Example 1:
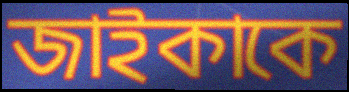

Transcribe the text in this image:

জাইকাকে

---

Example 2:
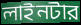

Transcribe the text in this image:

লাইনটার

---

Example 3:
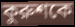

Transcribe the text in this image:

কুরুশকে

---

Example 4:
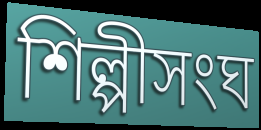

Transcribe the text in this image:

শিল্পীসংঘ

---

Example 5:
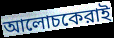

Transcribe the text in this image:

আলোচকেরাই